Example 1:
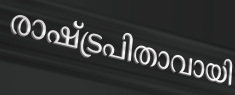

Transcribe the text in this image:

രാഷ്ട്രപിതാവായി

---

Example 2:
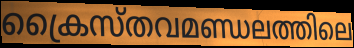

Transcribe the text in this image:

ക്രൈസ്തവമണ്ഡലത്തിലെ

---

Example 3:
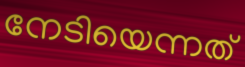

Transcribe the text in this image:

നേടിയെന്നത്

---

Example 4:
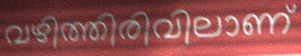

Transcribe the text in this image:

വഴിത്തിരിവിലാണ്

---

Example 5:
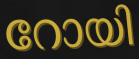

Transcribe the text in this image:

റോയി